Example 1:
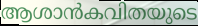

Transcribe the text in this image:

ആശാൻകവിതയുടെ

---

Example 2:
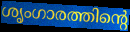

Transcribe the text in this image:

ശൃംഗാരത്തിന്റെ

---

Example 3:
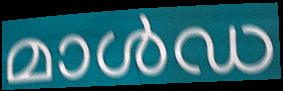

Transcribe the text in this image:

മാൾഡ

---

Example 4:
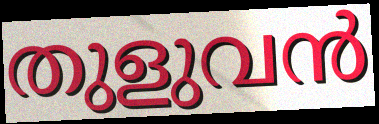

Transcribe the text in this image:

തുളുവൻ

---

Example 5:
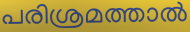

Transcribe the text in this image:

പരിശ്രമത്താൽ